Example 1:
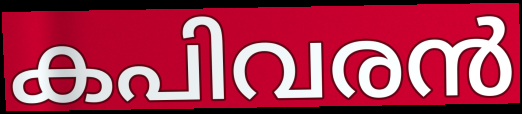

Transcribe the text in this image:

കപിവരൻ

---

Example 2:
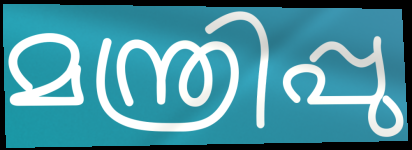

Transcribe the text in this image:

മന്ത്രിപ്പു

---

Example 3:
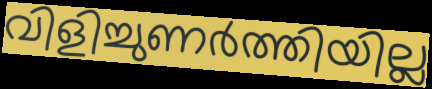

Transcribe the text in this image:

വിളിച്ചുണർത്തിയില്ല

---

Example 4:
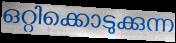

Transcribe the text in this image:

ഒറ്റിക്കൊടുക്കുന്ന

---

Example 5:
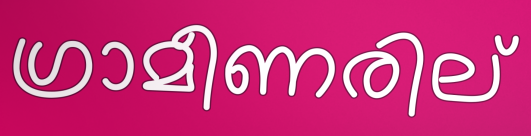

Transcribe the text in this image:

ഗ്രാമീണരില്